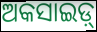
ଅକସାଇଡ଼୍